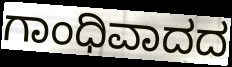
ಗಾಂಧಿವಾದದ